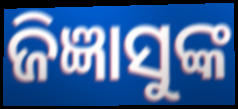
ଜିଜ୍ଞାସୁଙ୍କ